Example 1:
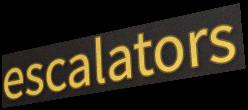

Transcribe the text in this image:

escalators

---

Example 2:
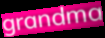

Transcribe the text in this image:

grandma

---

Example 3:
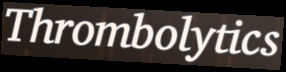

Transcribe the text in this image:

Thrombolytics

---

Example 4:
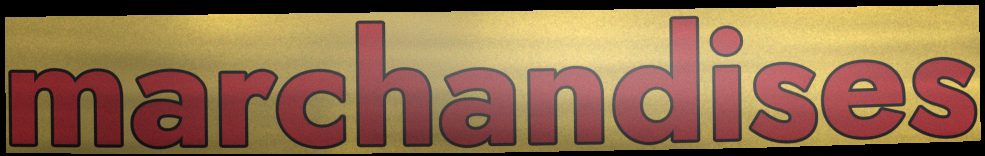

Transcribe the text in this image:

marchandises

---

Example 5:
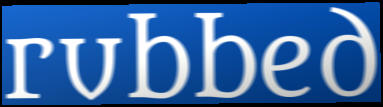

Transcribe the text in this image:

rubbed